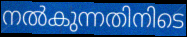
നൽകുന്നതിനിടെ